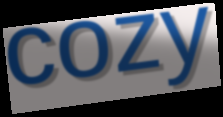
cozy